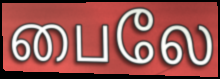
பைலே